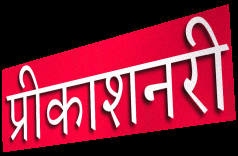
प्रीकाशनरी